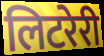
लिटरेरी